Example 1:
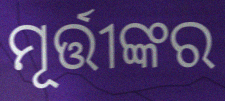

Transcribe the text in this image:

ମୂର୍ତ୍ତୀଙ୍କର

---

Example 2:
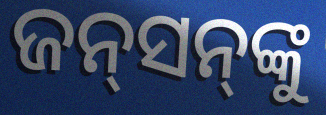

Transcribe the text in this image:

ଜନ୍‍ସନ୍‍ଙ୍କୁ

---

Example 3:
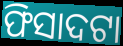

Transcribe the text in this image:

ଫିସାଦଟା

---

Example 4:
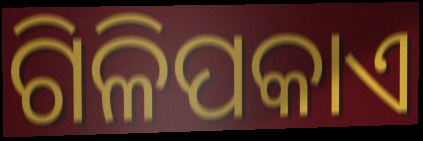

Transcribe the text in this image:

ଗିଳିପକାଏ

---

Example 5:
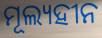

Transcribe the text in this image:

ମୂଲ୍ୟହୀନ